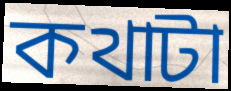
কথাটা